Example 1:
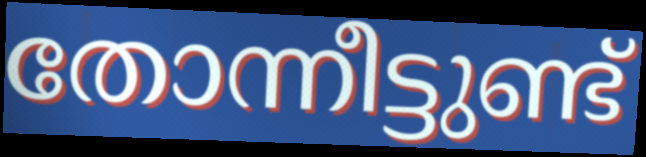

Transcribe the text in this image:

തോന്നീട്ടുണ്ട്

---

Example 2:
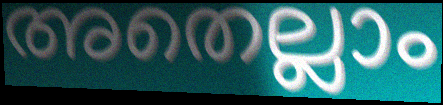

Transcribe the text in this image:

അതെല്ലാം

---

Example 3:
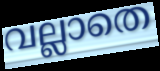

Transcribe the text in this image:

വല്ലാതെ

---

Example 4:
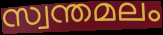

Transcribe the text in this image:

സ്വന്തമലം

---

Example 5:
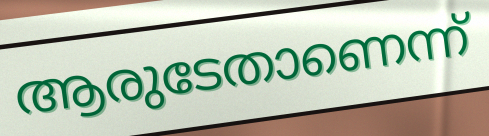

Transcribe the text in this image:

ആരുടേതാണെന്ന്